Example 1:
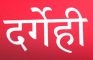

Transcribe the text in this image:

दर्गेही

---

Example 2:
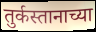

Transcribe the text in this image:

तुर्कस्तानाच्या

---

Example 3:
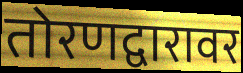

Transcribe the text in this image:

तोरणद्वारावर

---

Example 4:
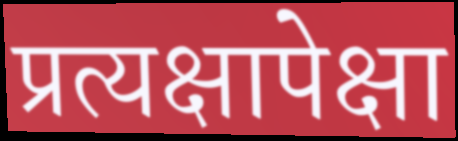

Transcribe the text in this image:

प्रत्यक्षापेक्षा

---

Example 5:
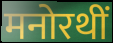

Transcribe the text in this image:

मनोरथीं